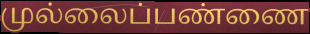
முல்லைப்பண்ணை